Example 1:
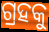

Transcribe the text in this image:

ଗ୍ରହକୁ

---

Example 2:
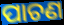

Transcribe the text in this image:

ପାଚଣ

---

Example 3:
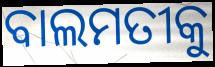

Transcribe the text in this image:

ବାଲମତୀକୁ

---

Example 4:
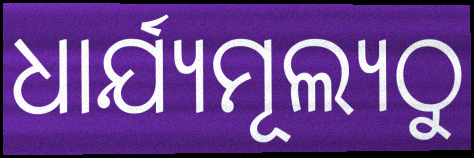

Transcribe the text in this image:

ଧାର୍ଯ୍ୟମୂଲ୍ୟଠୁ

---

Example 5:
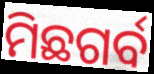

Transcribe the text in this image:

ମିଛଗର୍ବ